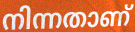
നിന്നതാണ്